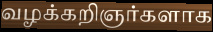
வழக்கறிஞர்களாக